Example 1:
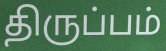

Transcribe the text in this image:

திருப்பம்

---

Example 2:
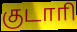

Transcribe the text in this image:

குடாரி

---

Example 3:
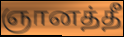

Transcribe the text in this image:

ஞானத்தீ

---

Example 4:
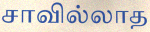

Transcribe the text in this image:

சாவில்லாத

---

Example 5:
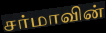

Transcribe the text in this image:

சர்மாவின்